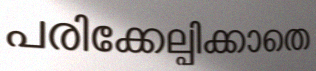
പരിക്കേല്പിക്കാതെ